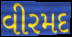
વીરમદ